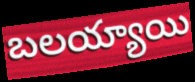
బలయ్యాయి